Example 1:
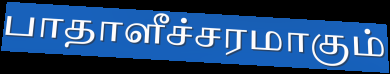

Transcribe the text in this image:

பாதாளீச்சரமாகும்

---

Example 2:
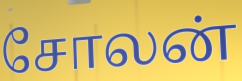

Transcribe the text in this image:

சோலன்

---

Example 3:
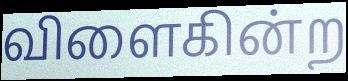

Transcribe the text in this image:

விளைகின்ற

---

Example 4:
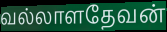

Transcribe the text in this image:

வல்லாளதேவன்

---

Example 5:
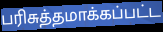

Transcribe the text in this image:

பரிசுத்தமாக்கப்பட்ட